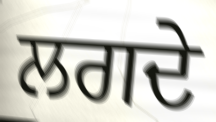
ਲਗਦੇ